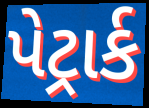
પેટ્રાર્ક